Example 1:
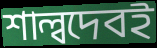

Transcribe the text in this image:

শাল্বদেবই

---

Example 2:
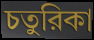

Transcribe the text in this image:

চতুরিকা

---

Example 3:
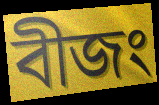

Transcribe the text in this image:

বীজং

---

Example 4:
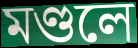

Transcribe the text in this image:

মণ্ডলে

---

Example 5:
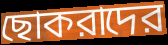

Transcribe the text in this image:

ছোকরাদের